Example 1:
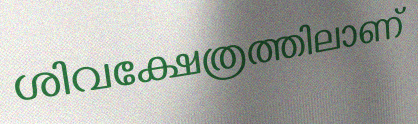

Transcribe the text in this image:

ശിവക്ഷേത്രത്തിലാണ്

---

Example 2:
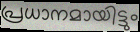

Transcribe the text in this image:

പ്രധാനമായിട്ടും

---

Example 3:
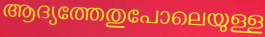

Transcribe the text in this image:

ആദ്യത്തേതുപോലെയുള്ള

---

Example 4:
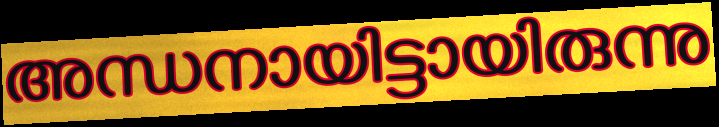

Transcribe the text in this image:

അന്ധനായിട്ടായിരുന്നു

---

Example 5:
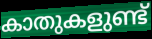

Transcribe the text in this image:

കാതുകളുണ്ട്